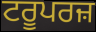
ਟਰੂਪਰਜ਼